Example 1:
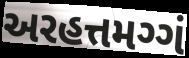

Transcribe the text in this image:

અરહત્તમગ્ગં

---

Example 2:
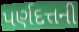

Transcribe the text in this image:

પર્ણદત્તની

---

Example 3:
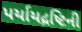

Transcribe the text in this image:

પર્યાયદ્રષ્ટિની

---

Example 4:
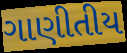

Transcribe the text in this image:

ગાણીતીય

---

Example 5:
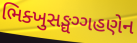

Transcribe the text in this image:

ભિક્ખુસઙ્ઘગ્ગહણેન